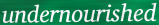
undernourished